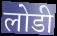
लोडी